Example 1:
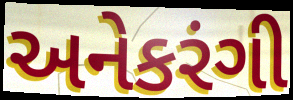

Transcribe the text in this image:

અનેકરંગી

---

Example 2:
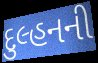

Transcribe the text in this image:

દુલ્હનની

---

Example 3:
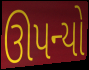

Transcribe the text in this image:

ઊપન્યો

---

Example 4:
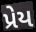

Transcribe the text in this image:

પ્રેય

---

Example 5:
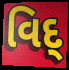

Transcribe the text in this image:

વિદ્